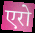
एरो